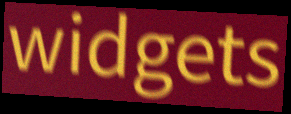
widgets